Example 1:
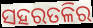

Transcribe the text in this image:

ସହରତଳିର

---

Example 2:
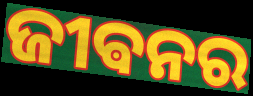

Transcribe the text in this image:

ଜୀଵନର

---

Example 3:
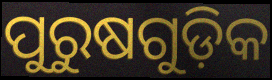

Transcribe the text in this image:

ପୁରୁଷଗୁଡ଼ିକ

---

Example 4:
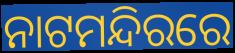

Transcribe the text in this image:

ନାଟମନ୍ଦିରରେ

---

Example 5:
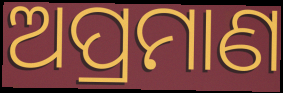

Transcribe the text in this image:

ଅପ୍ରମାଣ